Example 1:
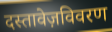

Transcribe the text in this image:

दस्तावेज़विवरण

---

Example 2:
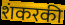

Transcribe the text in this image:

शंकरकी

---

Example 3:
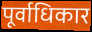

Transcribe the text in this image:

पूर्वाधिकार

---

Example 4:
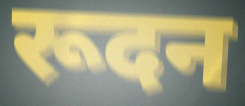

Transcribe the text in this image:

रूदन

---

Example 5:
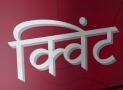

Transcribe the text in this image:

क्विंट